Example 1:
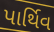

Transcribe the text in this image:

પાર્થિવ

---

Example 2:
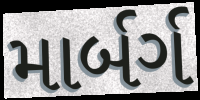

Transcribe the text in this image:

માર્બર્ગ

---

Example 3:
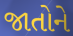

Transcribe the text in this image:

જાતોને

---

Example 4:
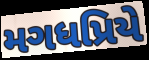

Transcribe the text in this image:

મગધપ્રિયે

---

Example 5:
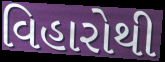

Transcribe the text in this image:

વિહારોથી